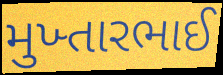
મુખ્તારભાઈ